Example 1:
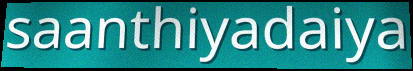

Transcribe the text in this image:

saanthiyadaiya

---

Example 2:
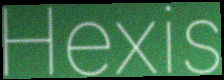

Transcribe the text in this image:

Hexis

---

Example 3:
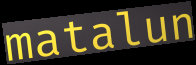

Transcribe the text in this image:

matalun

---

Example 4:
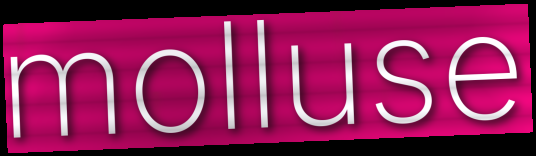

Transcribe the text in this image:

molluse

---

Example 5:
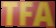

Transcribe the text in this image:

TFA